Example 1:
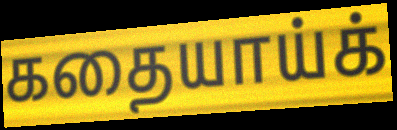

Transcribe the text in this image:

கதையாய்க்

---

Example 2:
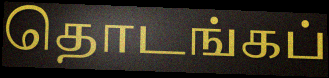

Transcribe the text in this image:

தொடங்கப்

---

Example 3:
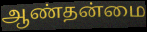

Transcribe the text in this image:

ஆண்தன்மை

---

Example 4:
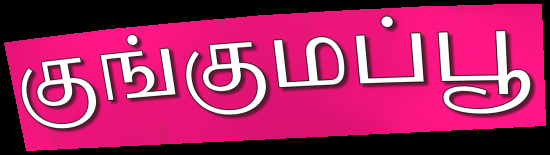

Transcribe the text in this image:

குங்குமப்பூ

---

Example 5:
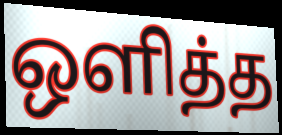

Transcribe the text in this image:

ஒளித்த